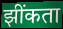
झींकता